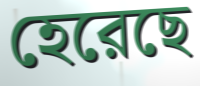
হেরেছে